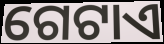
ଗେଟାଏ